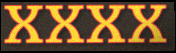
xxxx